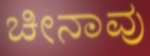
ಚೀನಾವು